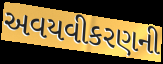
અવયવીકરણની